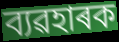
ব্যৱহাৰক